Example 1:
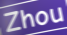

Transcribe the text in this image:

Zhou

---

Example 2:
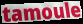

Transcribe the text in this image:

tamoule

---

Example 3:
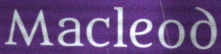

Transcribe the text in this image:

Macleod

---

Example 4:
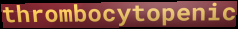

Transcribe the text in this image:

thrombocytopenic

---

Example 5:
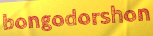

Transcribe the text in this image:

bongodorshon